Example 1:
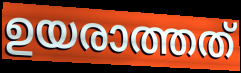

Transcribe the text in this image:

ഉയരാത്തത്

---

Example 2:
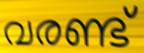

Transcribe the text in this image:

വരണ്ട്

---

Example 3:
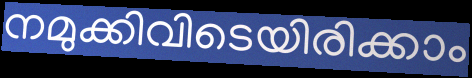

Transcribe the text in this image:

നമുക്കിവിടെയിരിക്കാം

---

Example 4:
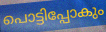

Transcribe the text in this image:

പൊട്ടിപ്പോകും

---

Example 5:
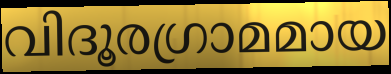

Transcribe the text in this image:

വിദൂരഗ്രാമമായ